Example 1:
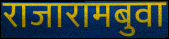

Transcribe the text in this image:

राजारामबुवा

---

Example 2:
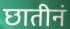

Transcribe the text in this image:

छातीनं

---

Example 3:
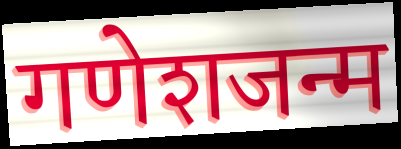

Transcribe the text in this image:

गणेशजन्म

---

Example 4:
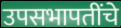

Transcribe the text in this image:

उपसभापतींचे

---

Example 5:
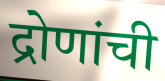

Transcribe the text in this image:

द्रोणांची